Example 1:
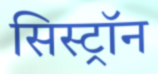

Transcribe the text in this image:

सिस्ट्रॉन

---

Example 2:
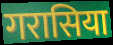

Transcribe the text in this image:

गरासिया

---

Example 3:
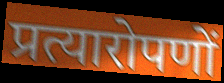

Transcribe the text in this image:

प्रत्यारोपणों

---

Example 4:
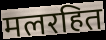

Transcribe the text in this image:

मलरहित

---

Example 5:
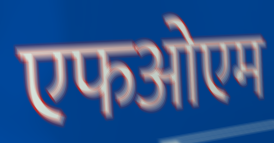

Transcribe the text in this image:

एफओएम